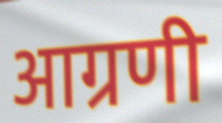
आग्रणी